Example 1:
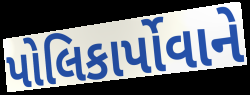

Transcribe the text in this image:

પોલિકાર્પોવાને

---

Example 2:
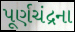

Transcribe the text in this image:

પૂર્ણચંદ્રના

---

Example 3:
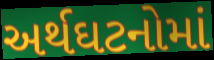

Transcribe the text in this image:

અર્થઘટનોમાં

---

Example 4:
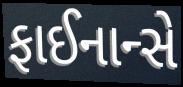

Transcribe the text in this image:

ફાઈનાન્સે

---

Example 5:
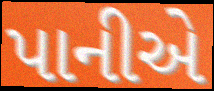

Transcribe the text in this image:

પાનીએ